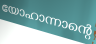
യോഹാന്നാന്റെ